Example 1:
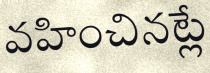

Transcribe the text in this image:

వహించినట్లే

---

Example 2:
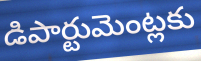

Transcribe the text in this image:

డిపార్టుమెంట్లకు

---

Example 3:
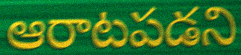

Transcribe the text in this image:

ఆరాటపడని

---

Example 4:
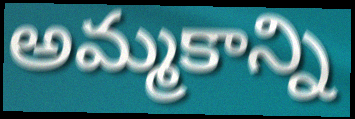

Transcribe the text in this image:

అమ్మకాన్ని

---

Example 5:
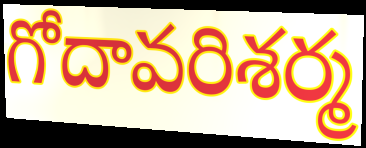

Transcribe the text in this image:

గోదావరిశర్మ